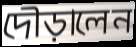
দৌড়ালেন